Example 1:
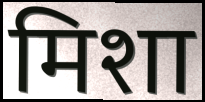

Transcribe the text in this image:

मिशा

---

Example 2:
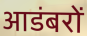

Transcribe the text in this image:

आडंबरों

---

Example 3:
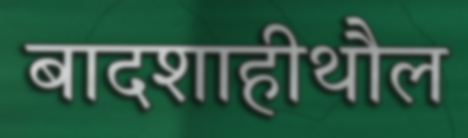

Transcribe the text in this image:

बादशाहीथौल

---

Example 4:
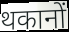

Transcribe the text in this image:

थकानों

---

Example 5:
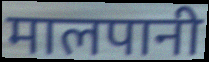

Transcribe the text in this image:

मालपानी